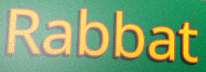
Rabbat